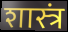
शास्त्रं